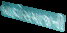
બ્રાહ્મોસમાજની